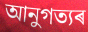
আনুগত্যৰ